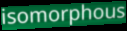
isomorphous